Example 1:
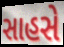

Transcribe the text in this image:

સાહસે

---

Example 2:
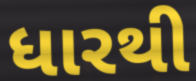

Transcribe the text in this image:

ધારથી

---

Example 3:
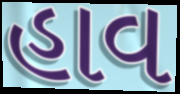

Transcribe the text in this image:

હાવ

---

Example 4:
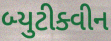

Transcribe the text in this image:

બ્યુટીક્વીન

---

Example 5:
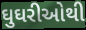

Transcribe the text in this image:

ઘુઘરીઓથી